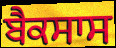
ਬੈਕਸਾਸ